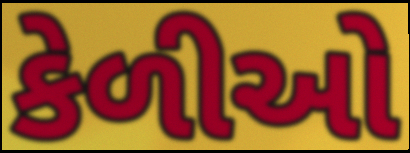
કેળીઓ